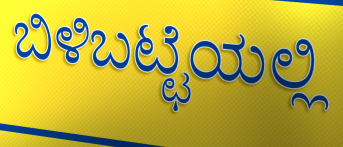
ಬಿಳಿಬಟ್ಟೆಯಲ್ಲಿ